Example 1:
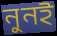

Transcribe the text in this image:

নুনই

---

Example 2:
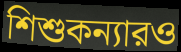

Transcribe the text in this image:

শিশুকন্যারও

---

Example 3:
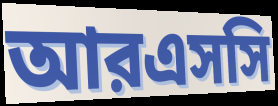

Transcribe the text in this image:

আরএসসি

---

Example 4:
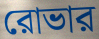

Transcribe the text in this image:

রোভার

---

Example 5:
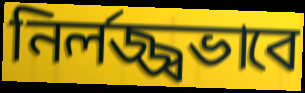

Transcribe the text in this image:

নির্লজ্জ্বভাবে